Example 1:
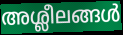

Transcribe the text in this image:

അശ്ലീലങ്ങൾ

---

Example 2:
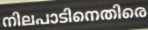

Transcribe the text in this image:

നിലപാടിനെതിരെ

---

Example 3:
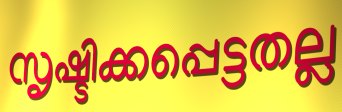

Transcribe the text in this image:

സൃഷ്ടിക്കപ്പെട്ടതല്ല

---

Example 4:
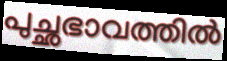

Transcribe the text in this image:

പുച്ഛഭാവത്തിൽ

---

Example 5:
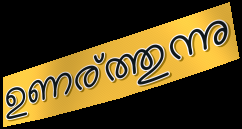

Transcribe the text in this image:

ഉണര്ത്തുന്നു